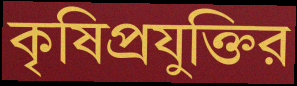
কৃষিপ্রযুক্তির